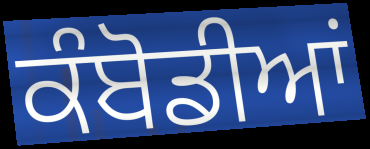
ਕੰਬੋਡੀਆਂ